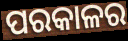
ପରକାଳର